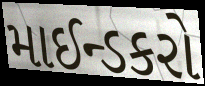
માઈન્ડકરો